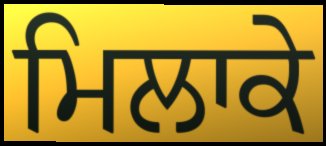
ਮਿਲਾਕੇ